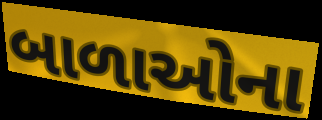
બાળાઓના